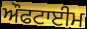
ਔਫਟਾਈਮ